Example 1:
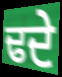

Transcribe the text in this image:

ਢਦੇ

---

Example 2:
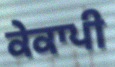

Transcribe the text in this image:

ਕੇਕਾਪੀ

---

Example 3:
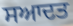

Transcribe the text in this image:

ਸਆਦਤ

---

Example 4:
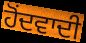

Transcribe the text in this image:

ਹੋਂਦਵਾਦੀ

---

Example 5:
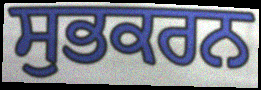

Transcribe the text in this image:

ਸੁਭਕਰਨ